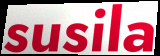
susila